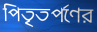
পিতৃতর্পণের